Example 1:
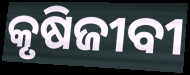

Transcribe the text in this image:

କୃଷିଜୀବୀ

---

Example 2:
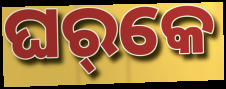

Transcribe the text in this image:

ଘର୍‌କେ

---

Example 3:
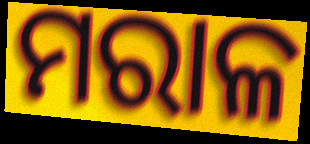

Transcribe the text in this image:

ମରାଳ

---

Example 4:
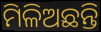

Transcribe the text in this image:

ମିଳିଅଛନ୍ତି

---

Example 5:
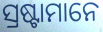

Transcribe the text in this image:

ସ୍ରଷ୍ଟାମାନେ